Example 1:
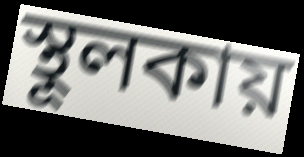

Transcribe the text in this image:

স্থূলকায়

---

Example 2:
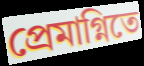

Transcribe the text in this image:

প্রেমাগ্নিতে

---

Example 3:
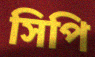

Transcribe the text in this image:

সিপি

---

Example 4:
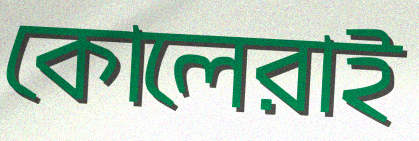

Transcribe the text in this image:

কোলেরাই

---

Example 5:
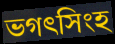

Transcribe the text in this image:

ভগৎসিংহ